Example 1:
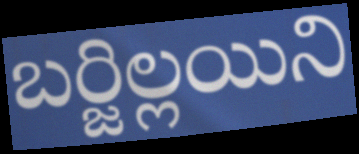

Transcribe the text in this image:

బర్జిల్లయిని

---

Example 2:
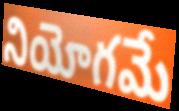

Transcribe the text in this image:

నియోగమే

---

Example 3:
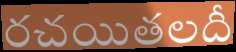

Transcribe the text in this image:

రచయితలదీ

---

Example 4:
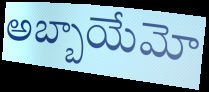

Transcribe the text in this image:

అబ్బాయేమో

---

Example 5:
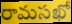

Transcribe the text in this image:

రామసఖో